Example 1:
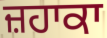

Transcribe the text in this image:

ਜ਼ਹਾਕਾ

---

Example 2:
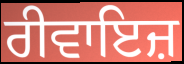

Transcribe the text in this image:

ਰੀਵਾਇਜ਼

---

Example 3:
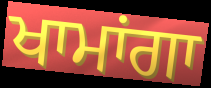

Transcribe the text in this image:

ਖਾਮਾਂਗਾ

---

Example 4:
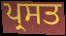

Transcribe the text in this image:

ਪ੍ਰਸਤ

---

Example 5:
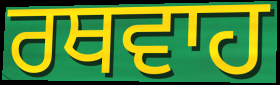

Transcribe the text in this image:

ਰਥਵਾਹ